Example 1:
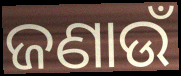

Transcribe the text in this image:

ଜଣାଉଁ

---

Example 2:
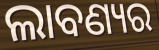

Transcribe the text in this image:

ଲାବଣ୍ୟର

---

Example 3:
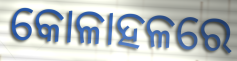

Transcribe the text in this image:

କୋଳାହଳରେ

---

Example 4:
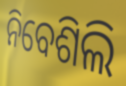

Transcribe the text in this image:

ନିବେଶିଲି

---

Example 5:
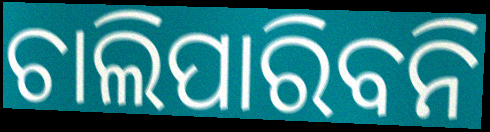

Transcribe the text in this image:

ଚାଲିପାରିବନି